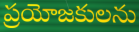
ప్రయోజకులను